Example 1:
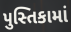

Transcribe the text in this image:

પુસ્તિકામાં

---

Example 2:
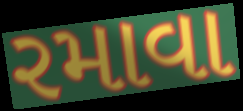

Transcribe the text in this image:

રમાવા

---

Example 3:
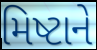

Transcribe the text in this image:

મિષ્ટાને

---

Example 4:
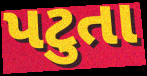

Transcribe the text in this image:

પટુતા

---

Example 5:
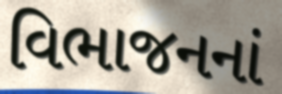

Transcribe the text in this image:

વિભાજનનાં